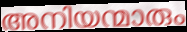
അനിയന്മാരും